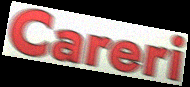
Careri